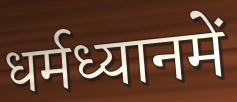
धर्मध्यानमें